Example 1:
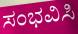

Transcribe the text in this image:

ಸಂಭವಿಸಿ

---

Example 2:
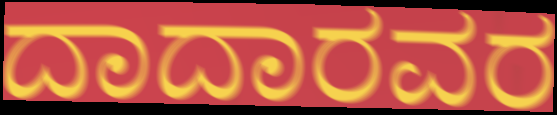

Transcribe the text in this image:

ದಾದಾರವರ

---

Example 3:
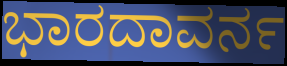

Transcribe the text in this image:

ಭಾರದಾವರ್ನ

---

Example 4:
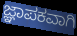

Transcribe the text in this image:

ಜ್ಞಾಪಕವಾಗಿ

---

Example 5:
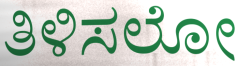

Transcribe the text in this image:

ತಿಳಿಸಲೋ